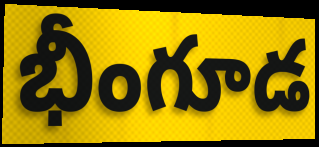
భీంగూడ